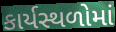
કાર્યસ્થળોમાં